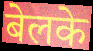
बेलके